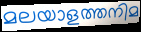
മലയാളത്തനിമ